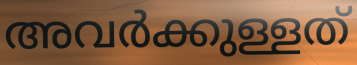
അവർക്കുള്ളത്